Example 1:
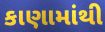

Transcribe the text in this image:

કાણામાંથી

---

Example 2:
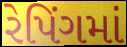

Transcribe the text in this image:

રેપિંગમાં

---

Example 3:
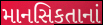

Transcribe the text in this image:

માનસિકતાનાં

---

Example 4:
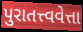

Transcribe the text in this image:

પુરાતત્ત્વવેત્તા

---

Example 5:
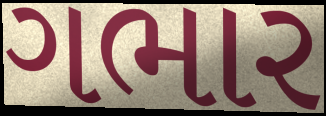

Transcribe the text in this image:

ગભાર